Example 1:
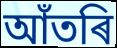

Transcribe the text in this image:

আঁতৰি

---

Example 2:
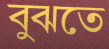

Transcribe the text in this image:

বুঝতে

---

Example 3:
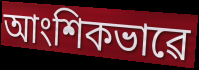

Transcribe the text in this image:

আংশিকভাৱে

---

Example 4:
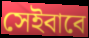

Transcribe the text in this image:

সেইবাবে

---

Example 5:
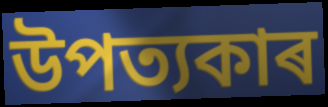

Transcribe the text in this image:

উপত্যকাৰ